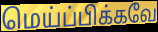
மெய்ப்பிக்கவே